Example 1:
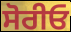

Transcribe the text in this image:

ਸੋਰੀਓ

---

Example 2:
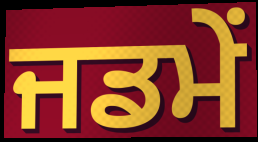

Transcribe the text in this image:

ਜਡਮੇਂ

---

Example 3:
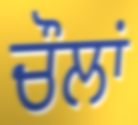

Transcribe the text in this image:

ਚੌਲਾਂ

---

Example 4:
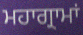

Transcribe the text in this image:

ਮਹਾਗ੍ਰਾਮਾਂ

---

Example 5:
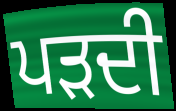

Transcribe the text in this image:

ਪੜਦੀ